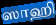
ஸாஹி